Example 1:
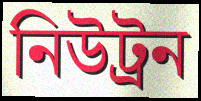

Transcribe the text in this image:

নিউট্ৰন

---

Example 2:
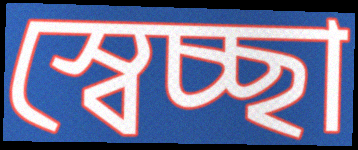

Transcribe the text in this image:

স্বেচ্ছা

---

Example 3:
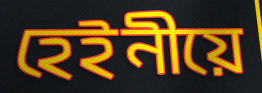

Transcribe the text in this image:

হেইনীয়ে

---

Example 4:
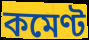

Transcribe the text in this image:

কমেণ্ট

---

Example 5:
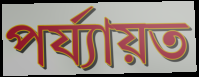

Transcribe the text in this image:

পৰ্য্যায়ত